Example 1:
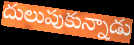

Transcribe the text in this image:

దులుపుకున్నాడు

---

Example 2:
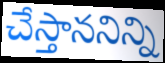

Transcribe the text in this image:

చేస్తాననిన్ని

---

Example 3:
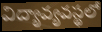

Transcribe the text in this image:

విద్యావ్యవస్థలో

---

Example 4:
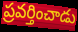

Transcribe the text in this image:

ప్రవర్తించాడు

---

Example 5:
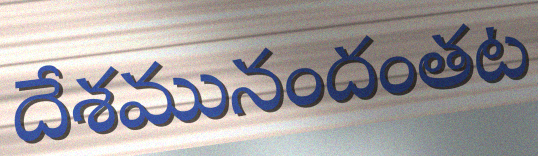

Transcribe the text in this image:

దేశమునందంతట